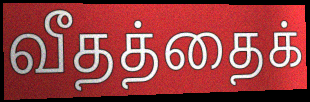
வீதத்தைக்